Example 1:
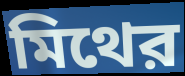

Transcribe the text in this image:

মিথের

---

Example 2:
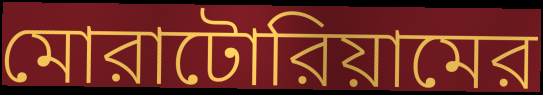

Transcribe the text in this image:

মোরাটোরিয়ামের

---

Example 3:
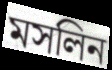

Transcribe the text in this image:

মসলিন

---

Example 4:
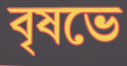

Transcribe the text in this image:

বৃষভে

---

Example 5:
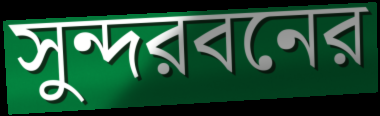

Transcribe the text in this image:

সুন্দরবনের